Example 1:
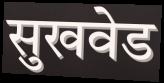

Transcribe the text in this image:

सुखवेड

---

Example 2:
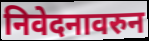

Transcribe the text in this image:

निवेदनावरुन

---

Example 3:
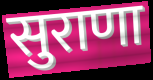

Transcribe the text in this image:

सुराणा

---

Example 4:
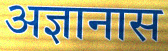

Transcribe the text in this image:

अज्ञानास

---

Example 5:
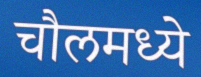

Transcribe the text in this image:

चौलमध्ये